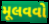
મૂલવવો